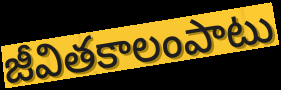
జీవితకాలంపాటు